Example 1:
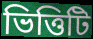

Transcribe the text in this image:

ভিত্তিটি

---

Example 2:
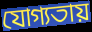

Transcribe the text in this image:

যোগ্যতায়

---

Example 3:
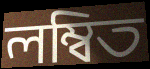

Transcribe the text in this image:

লম্বিত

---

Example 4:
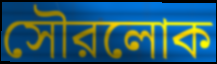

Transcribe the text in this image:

সৌরলোক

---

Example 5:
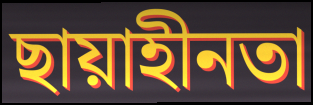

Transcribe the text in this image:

ছায়াহীনতা